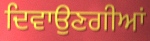
ਦਿਵਾਉਣਗੀਆਂ